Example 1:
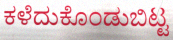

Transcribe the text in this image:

ಕಳೆದುಕೊಂಡುಬಿಟ್ಟ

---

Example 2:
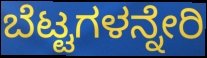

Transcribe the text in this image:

ಬೆಟ್ಟಗಳನ್ನೇರಿ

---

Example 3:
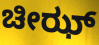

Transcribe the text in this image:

ಚೀಝ್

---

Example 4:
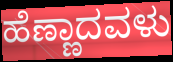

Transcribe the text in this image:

ಹೆಣ್ಣಾದವಳು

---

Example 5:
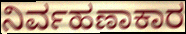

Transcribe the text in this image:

ನಿರ್ವಹಣಾಕಾರ